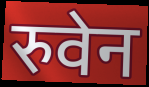
रुवेन